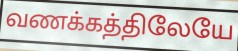
வணக்கத்திலேயே